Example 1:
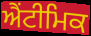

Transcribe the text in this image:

ਐਂਟੀਮਿਕ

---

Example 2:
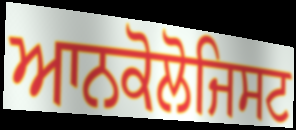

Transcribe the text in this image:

ਆਨਕੋਲੋਜਿਸਟ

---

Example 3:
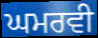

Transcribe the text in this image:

ਘਮਰਵੀ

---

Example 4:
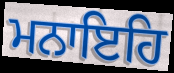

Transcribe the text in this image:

ਮਨਾਇਹਿ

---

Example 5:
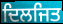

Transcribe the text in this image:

ਦਿਲਜਿਤ